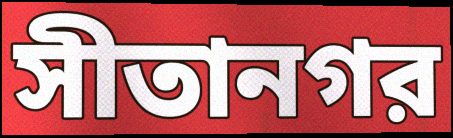
সীতানগর